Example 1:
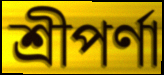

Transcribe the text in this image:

শ্রীপর্ণা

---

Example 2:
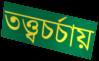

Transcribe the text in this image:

তত্ত্বচর্চায়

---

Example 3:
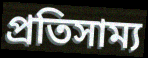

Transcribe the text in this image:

প্রতিসাম্য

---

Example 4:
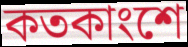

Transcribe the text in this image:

কতকাংশে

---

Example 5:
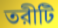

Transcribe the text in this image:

তরীটি